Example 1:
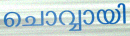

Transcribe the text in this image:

ചൊവ്വായി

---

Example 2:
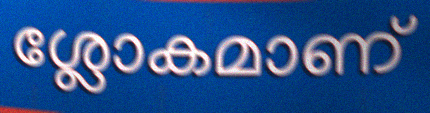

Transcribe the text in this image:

ശ്ലോകമാണ്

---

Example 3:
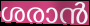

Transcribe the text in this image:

ശരാൻ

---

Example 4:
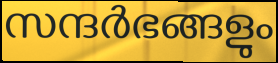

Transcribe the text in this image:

സന്ദർഭങ്ങളും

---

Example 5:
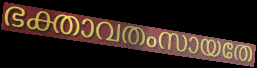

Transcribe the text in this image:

ഭക്താവതംസായതേ